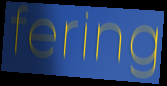
fering